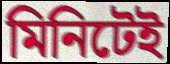
মিনিটেই